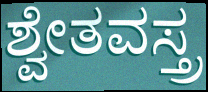
ಶ್ವೇತವಸ್ತ್ರ